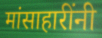
मांसाहारींनी